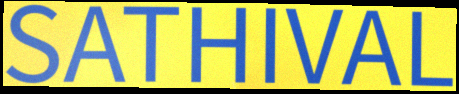
SATHIVAL